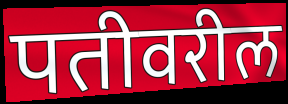
पतीवरील